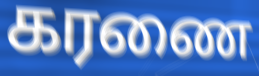
கரணை